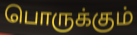
பொருக்கும்